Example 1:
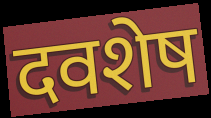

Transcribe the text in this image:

दवशेष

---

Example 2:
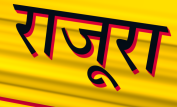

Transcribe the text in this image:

राजूरा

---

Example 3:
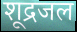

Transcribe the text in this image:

शूद्रजल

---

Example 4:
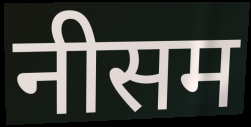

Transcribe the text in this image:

नीसम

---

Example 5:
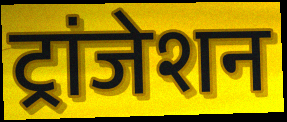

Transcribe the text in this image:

ट्रांजेशन